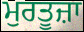
ਮੁਰਤੂਜ਼ਾ